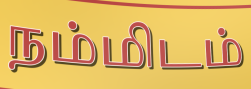
நம்மிடம்